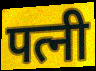
पत्नी